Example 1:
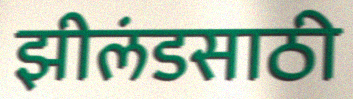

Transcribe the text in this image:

झीलंडसाठी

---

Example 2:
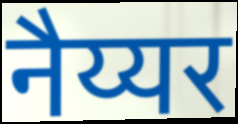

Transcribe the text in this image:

नैय्यर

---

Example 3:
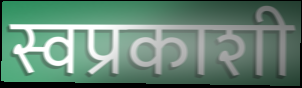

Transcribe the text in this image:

स्वप्रकाशी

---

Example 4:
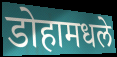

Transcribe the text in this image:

डोहामधले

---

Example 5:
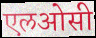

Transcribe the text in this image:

एलओसी